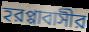
হরপ্পাবাসীর